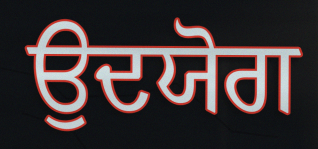
ਉਦਯੋਗ